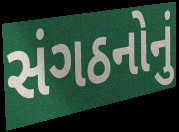
સંગઠનોનું